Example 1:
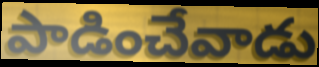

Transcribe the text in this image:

పాడించేవాడు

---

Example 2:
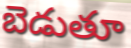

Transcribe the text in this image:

బెడుతూ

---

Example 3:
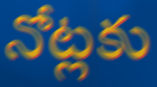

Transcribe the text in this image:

నోట్లకు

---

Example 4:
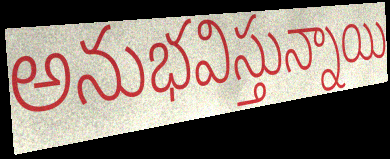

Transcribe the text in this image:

అనుభవిస్తున్నాయి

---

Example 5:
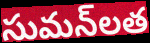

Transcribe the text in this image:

సుమన్‌లత